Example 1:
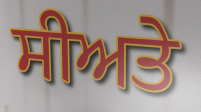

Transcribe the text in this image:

ਸੀਅਤੇ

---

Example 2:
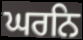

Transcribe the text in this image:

ਘਰਨਿ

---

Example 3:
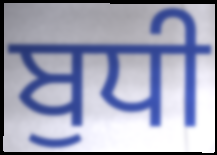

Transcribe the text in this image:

ਬੁਧੀ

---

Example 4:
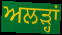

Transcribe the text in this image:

ਅਲੜ੍ਹਾਂ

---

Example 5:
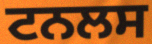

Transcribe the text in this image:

ਟਨਲਸ